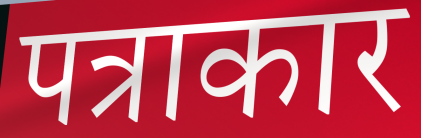
पत्राकार